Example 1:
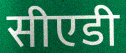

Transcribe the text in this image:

सीएडी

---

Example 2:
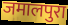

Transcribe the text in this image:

जमालपुरा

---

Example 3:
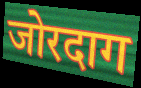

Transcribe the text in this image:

जोरदाग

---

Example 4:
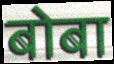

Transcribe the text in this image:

बोबा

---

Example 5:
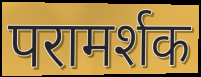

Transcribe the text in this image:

परामर्शक